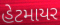
હેટમાયર